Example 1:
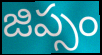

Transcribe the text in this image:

జిప్సం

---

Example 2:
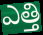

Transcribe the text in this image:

ఎత్తి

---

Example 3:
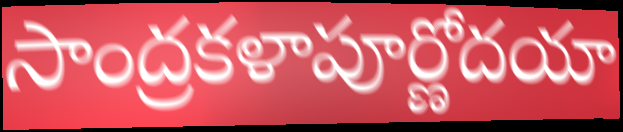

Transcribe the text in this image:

సాంద్రకళాపూర్ణోదయా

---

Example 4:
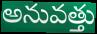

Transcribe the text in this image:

అనువత్తు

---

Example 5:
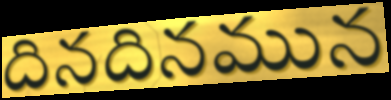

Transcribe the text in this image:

దినదినమున